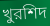
খুরশিদ